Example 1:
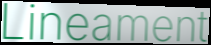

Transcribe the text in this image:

Lineament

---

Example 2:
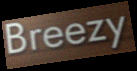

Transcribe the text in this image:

Breezy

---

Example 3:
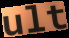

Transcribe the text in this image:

ult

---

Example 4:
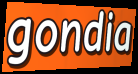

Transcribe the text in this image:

gondia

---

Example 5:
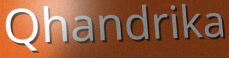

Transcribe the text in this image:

Qhandrika